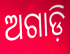
ଅଗାଡ଼ି